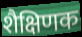
शैक्षिणक